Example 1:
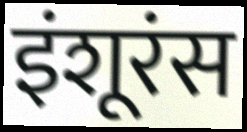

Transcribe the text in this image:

इंशूरंस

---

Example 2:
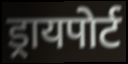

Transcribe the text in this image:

ड्रायपोर्ट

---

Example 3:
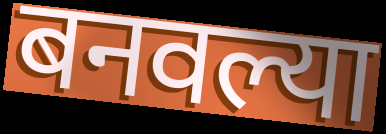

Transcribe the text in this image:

बनवल्या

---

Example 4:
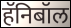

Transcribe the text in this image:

हॅनिबॉल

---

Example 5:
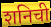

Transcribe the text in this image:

शनिची